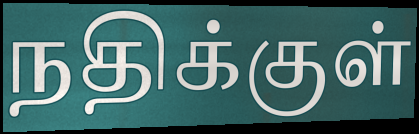
நதிக்குள்